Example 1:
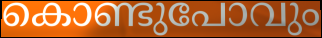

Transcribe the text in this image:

കൊണ്ടുപോവും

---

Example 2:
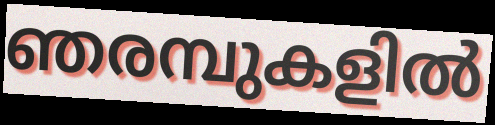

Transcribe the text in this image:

ഞരമ്പുകളിൽ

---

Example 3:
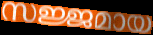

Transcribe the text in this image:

സജ്ജമായ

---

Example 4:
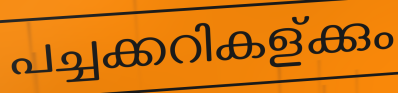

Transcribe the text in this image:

പച്ചക്കറികള്ക്കും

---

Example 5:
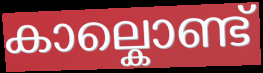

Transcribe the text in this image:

കാല്കൊണ്ട്